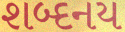
શબ્દનય